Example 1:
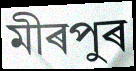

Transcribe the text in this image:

মীৰপুৰ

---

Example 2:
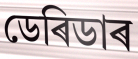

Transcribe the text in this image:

ডেৰিডাৰ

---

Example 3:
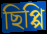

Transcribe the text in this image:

ছিপ্পি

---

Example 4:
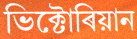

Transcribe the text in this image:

ভিক্টোৰিয়ান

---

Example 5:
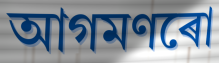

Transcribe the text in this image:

আগমণৰো